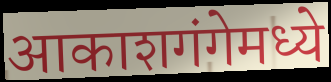
आकाशगंगेमध्ये